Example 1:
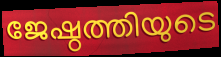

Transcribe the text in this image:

ജേഷ്ഠത്തിയുടെ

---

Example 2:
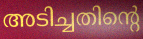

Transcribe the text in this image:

അടിച്ചതിന്റെ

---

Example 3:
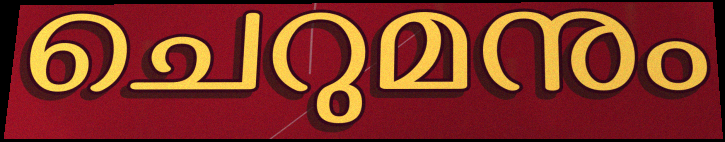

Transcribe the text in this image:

ചെറുമനും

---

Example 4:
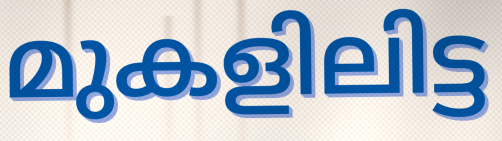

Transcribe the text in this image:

മുകളിലിട്ട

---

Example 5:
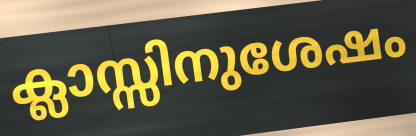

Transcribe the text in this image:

ക്ലാസ്സിനുശേഷം